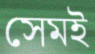
সেমই